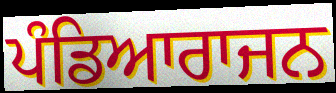
ਪੰਡਿਆਰਾਜਨ